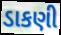
ડાકણી